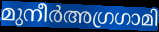
മുനീർഅഗ്രഗാമി